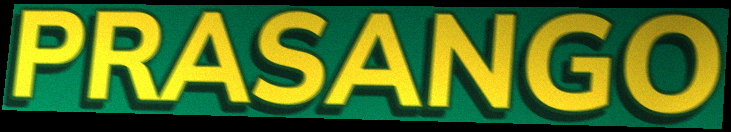
PRASANGO